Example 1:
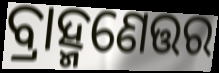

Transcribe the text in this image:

ବ୍ରାହ୍ମଣେତ୍ତର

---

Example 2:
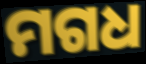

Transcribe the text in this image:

ମଗଧ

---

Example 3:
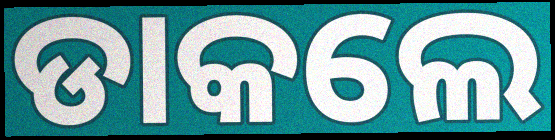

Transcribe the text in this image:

ଡାକଲେ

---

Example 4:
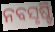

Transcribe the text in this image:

ନବସୃଷ୍ଟି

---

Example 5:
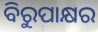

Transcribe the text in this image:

ବିରୁପାକ୍ଷର